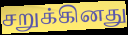
சறுக்கினது